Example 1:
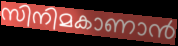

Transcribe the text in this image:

സിനിമകാണാൻ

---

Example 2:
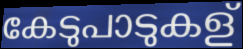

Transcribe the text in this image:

കേടുപാടുകള്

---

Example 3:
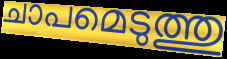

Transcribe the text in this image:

ചാപമെടുത്തു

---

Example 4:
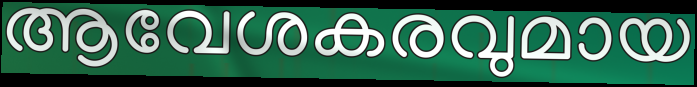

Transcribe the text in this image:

ആവേശകരവുമായ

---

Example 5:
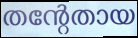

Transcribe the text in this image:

തന്റേതായ